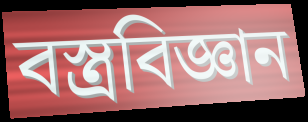
বস্ত্রবিজ্ঞান